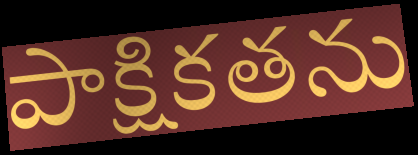
పాక్షికతను